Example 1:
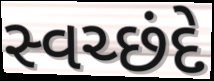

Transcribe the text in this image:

સ્વચ્છંદે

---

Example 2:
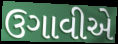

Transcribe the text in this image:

ઉગાવીએ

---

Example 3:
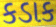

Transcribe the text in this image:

કડાક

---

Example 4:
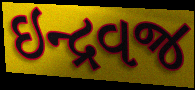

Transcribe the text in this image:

ઇન્દ્રવજ્ર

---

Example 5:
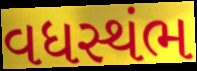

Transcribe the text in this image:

વધસ્થંભ